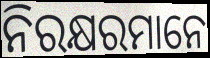
ନିରକ୍ଷରମାନେ